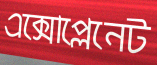
এক্সোপ্লেনেট